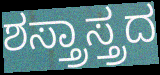
ಶಸ್ತ್ರಾಸ್ತ್ರದ